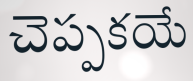
చెప్పకయే